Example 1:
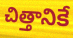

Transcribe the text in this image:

చిత్తానికే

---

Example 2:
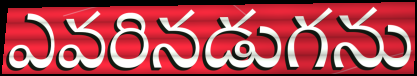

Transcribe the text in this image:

ఎవరినడుగను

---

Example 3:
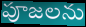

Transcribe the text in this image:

పూజలను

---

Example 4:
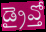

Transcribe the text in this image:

డ్రైవ్తో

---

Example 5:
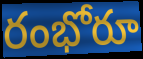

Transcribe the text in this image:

రంభోరూ